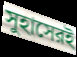
সুহাসেরই